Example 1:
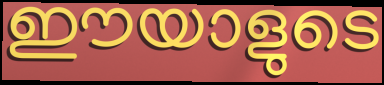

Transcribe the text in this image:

ഈയാളുടെ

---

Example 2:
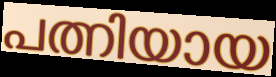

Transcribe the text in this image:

പത്നിയായ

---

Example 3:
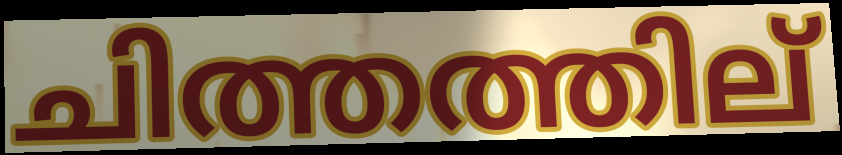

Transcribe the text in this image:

ചിത്തത്തില്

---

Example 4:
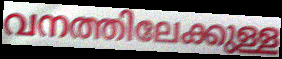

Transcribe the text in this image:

വനത്തിലേക്കുള്ള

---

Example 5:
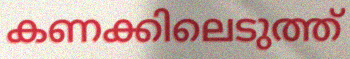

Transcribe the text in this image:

കണക്കിലെടുത്ത്